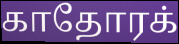
காதோரக்